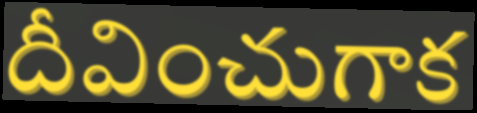
దీవించుగాక